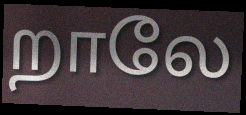
றாலே